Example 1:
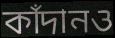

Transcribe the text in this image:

কাঁদানও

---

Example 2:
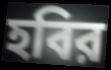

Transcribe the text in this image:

হবির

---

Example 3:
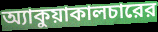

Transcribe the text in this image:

অ্যাকুয়াকালচারের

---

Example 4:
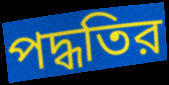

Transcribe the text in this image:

পদ্ধতির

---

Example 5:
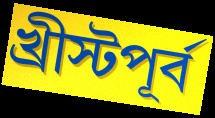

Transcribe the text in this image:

খ্রীস্টপূর্ব